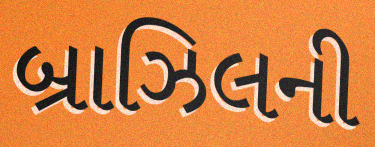
બ્રાઝિલની